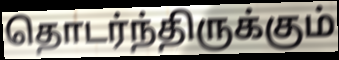
தொடர்ந்திருக்கும்